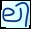
ലി